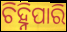
ଚିହ୍ନିପାରି